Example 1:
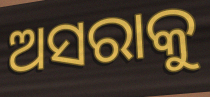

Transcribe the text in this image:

ଅସରାକୁ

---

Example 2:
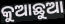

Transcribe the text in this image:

କୁଆଛୁଆ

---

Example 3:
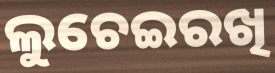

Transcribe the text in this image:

ଲୁଚେଇରଖି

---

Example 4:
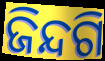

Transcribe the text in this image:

ଜିନ୍ଦଗି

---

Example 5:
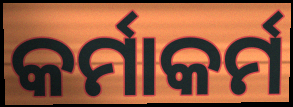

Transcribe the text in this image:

କର୍ମାକର୍ମ